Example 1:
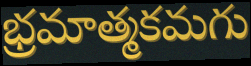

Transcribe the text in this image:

భ్రమాత్మకమగు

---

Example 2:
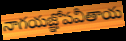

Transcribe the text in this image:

నాగయజ్ఞోపవీతాయ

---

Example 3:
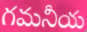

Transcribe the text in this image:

గమనీయ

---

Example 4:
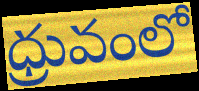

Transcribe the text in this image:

ధ్రువంలో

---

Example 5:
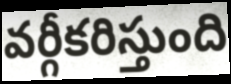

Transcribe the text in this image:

వర్గీకరిస్తుంది